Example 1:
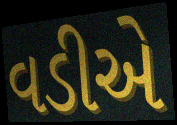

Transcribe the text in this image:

વડીએ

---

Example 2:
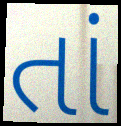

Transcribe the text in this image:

તાં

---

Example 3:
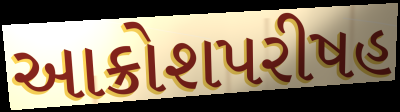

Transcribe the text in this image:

આક્રોશપરીષહ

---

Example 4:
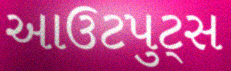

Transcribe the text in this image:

આઉટપુટ્સ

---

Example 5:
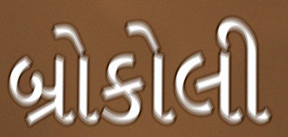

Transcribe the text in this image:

બ્રોકોલી